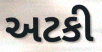
અટકી